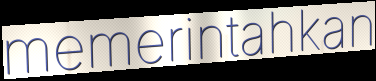
memerintahkan